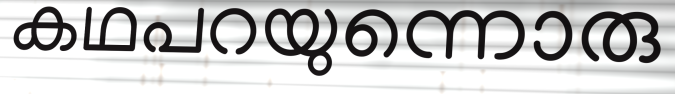
കഥപറയുന്നൊരു